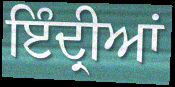
ਇੰਦ੍ਰੀਆਂ